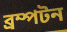
ব্রম্পটন